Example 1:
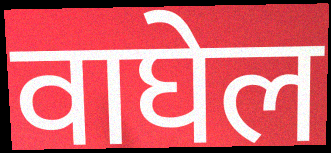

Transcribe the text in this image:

वाघेल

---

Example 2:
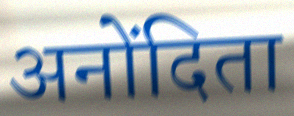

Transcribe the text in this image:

अनोंदिता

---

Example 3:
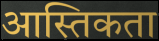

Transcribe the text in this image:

आस्तिकता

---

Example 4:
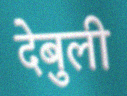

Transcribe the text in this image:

देबुली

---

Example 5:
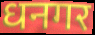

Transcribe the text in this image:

धनगर